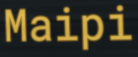
Maipi